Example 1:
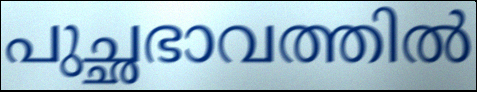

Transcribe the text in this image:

പുച്ഛഭാവത്തിൽ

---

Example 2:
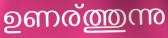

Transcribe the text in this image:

ഉണര്ത്തുന്നു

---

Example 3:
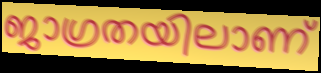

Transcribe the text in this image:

ജാഗ്രതയിലാണ്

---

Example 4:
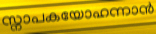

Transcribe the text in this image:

സ്നാപകയോഹന്നാൻ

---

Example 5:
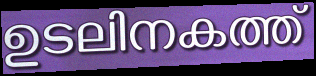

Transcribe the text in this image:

ഉടലിനകത്ത്